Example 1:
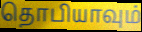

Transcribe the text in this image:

தொபியாவும்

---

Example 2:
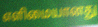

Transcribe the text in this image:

எளிமையானது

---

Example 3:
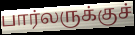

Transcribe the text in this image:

பார்லருக்குச்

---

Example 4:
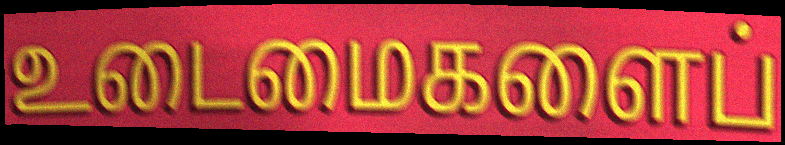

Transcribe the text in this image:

உடைமைகளைப்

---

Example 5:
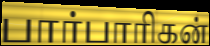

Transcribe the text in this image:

பார்பாரிகன்